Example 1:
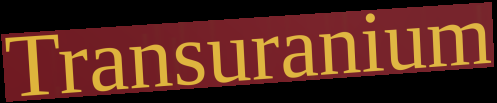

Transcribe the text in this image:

Transuranium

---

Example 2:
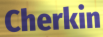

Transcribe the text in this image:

Cherkin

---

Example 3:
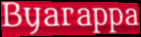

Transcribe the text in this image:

Byarappa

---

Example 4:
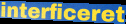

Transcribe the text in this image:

interficeret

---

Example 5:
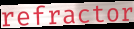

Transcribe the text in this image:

refractor